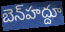
బెన్‍హద్దూ